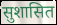
सुशासित